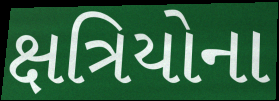
ક્ષત્રિયોના